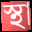
স্থা